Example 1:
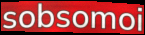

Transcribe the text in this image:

sobsomoi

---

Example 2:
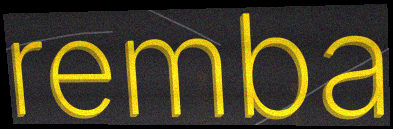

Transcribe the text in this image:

remba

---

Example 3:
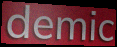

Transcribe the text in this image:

demic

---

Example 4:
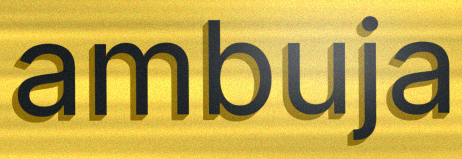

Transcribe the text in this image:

ambuja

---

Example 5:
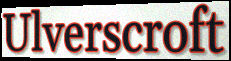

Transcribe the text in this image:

Ulverscroft